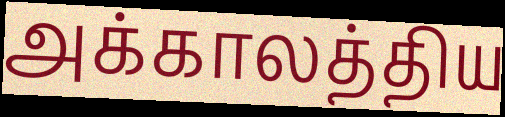
அக்காலத்திய